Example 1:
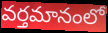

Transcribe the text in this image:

వర్తమానంలో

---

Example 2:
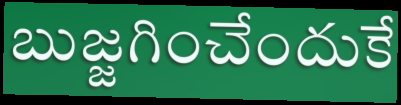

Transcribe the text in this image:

బుజ్జగించేందుకే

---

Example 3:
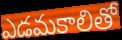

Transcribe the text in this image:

ఎడమకాలితో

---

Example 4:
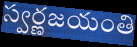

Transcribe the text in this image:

స్వర్ణజయంతి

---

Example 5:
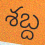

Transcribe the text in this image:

శబ్ద